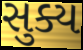
સુક્ય